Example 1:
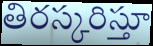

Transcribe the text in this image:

తిరస్కరిస్తూ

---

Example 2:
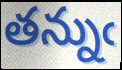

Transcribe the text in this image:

తన్నుఁ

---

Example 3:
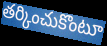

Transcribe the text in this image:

తర్కించుకొంటూ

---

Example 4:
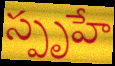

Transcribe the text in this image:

స్పృహే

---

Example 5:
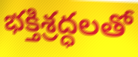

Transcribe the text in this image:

భక్తిశ్రద్ధలతో